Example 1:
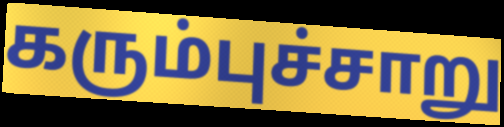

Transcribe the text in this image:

கரும்புச்சாறு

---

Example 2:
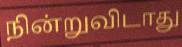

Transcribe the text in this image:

நின்றுவிடாது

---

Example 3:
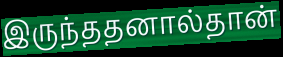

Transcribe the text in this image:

இருந்ததனால்தான்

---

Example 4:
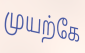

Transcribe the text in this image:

முயற்கே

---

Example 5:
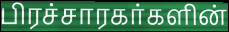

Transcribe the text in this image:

பிரச்சாரகர்களின்